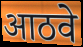
आठवे